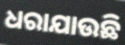
ଧରାଯାଉଛି